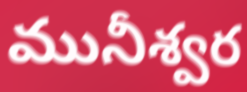
మునీశ్వర